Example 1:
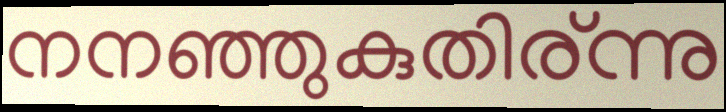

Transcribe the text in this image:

നനഞ്ഞുകുതിര്ന്നു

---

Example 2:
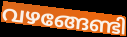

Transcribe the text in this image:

വഴങ്ങേണ്ടി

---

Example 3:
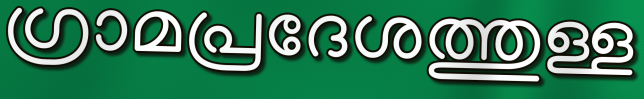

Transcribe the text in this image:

ഗ്രാമപ്രദേശത്തുള്ള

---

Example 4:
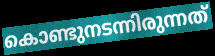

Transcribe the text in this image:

കൊണ്ടുനടന്നിരുന്നത്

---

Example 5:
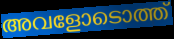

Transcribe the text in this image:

അവളോടൊത്ത്